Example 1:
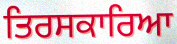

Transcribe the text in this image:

ਤਿਰਸਕਾਰਿਆ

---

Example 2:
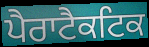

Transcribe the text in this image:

ਪੈਰਾਟੈਕਟਿਕ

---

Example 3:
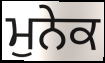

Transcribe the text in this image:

ਮੁਨੇਕ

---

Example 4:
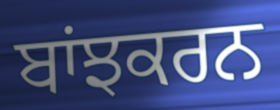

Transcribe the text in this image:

ਬਾਂਝਕਰਨ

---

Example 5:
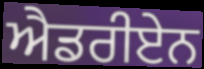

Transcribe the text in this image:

ਐਡਰੀਏਨ